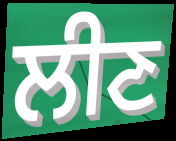
ਲੀਣ